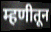
म्हणीतून